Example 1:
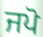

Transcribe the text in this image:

ਜਪੋ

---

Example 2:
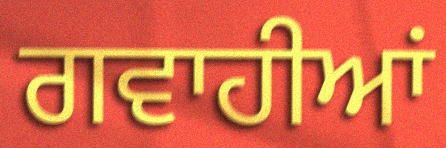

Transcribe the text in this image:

ਗਵਾਹੀਆਂ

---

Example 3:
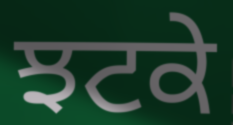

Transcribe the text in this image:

ਝਟਕੇ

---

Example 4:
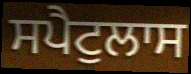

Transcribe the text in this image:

ਸਪੈਟੁਲਾਸ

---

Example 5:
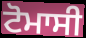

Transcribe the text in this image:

ਟੋਮਾਸੀ